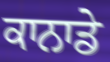
ਕਾਨਾਡੇ